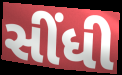
સીંધી